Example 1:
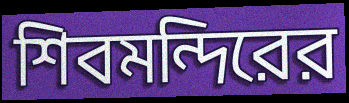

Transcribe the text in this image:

শিবমন্দিরের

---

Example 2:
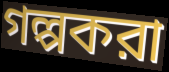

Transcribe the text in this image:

গল্পকরা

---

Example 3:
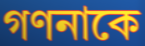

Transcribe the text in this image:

গণনাকে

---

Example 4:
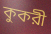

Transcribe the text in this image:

কুকরী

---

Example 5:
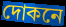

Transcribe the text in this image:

দোকনে